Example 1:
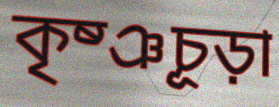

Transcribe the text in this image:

কৃষ্ঞচূড়া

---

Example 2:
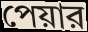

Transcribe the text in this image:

পেয়ার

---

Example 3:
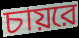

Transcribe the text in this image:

চায়রে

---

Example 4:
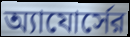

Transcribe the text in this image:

অ্যাযোর্সের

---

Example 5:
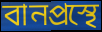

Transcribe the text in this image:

বানপ্রস্থে